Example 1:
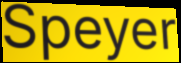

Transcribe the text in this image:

Speyer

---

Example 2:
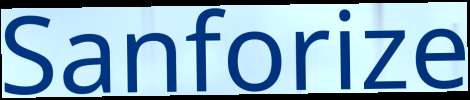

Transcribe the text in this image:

Sanforize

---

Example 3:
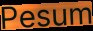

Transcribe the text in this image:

Pesum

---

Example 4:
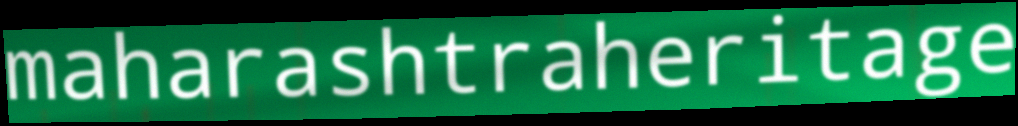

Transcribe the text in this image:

maharashtraheritage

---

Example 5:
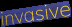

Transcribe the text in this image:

invasive